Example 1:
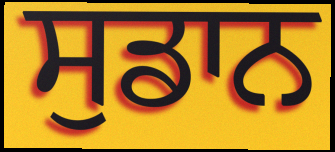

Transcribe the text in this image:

ਸੁਡਾਨ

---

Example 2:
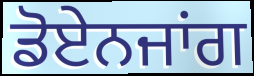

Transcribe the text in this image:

ਡੋਏਨਜਾਂਗ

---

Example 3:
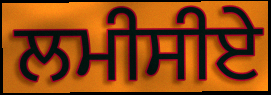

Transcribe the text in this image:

ਲਮੀਸੀਏ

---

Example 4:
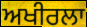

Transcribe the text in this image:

ਅਖੀਰਲਾ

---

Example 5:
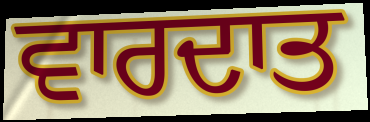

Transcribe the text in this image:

ਵਾਰਦਾਤ